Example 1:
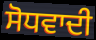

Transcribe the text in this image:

ਸੋਧਵਾਦੀ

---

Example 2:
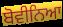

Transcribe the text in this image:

ਬੋਵੀਨਿਆ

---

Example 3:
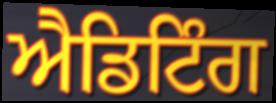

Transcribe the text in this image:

ਐਡਿਟਿੰਗ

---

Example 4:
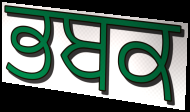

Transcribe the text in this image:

ਭਬਕ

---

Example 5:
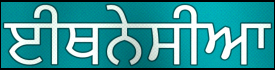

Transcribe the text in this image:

ਈਥਨੇਸੀਆ